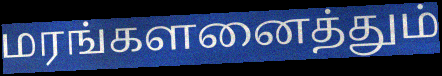
மரங்களனைத்தும்